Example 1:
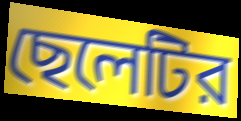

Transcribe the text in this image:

ছেলেটির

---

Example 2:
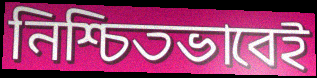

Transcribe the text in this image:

নিশ্চিতভাবেই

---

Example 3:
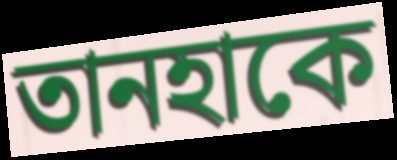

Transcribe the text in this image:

তানহাকে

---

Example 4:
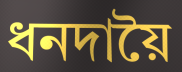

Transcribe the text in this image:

ধনদায়ৈ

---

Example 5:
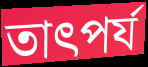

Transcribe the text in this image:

তাৎপর্য